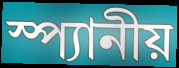
স্প্যানীয়